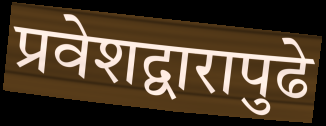
प्रवेशद्वारापुढे